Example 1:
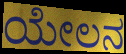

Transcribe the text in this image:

ಯೇಲನ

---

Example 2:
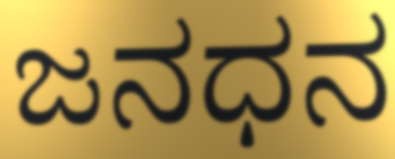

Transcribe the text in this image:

ಜನಧನ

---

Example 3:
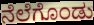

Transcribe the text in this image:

ನೆಲೆಗೊಂಡು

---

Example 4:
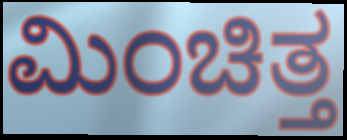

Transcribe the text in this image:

ಮಿಂಚಿತ್ತ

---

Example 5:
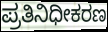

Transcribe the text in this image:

ಪ್ರತಿನಿಧೀಕರಣ